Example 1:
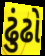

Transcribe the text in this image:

ઢુંઢો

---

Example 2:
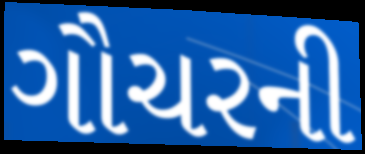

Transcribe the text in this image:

ગૌચરની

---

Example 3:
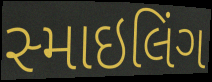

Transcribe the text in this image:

સ્માઇલિંગ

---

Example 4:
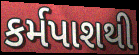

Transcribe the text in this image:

કર્મપાશથી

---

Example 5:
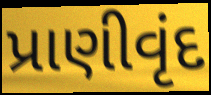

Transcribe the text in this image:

પ્રાણીવૃંદ